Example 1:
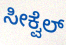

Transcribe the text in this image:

ಸೀಕ್ವೆಲ್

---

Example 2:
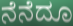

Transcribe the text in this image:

ನೆನೆದೂ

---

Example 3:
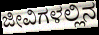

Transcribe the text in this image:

ಜೀವಿಗಳಲ್ಲಿನ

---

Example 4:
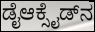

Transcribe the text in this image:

ಡೈಆಕ್ಸೈಡ್‌ನ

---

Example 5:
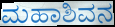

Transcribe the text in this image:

ಮಹಾಶಿವನ